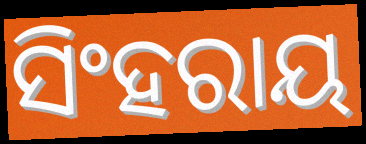
ସିଂହରାୟ